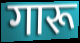
गारू